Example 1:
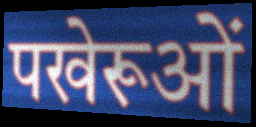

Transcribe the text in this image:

पखेरूओं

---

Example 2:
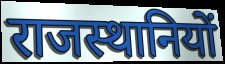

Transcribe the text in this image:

राजस्थानियों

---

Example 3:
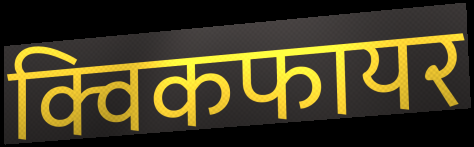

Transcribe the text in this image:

क्विकफायर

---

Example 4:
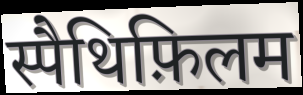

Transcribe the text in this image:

स्पैथिफ़िलम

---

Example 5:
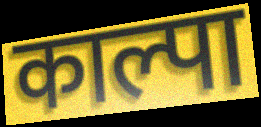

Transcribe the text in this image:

काल्पा